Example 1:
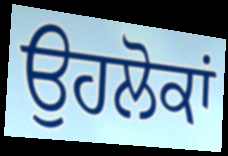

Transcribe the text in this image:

ਉਹਲੋਕਾਂ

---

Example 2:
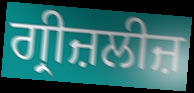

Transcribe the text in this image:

ਗ੍ਰੀਜ਼ਲੀਜ਼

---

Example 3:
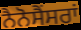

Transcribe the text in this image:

ਨੈਨੋਸੈਂਸਰਾਂ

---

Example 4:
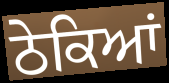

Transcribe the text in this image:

ਠੇਕਿਆਂ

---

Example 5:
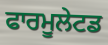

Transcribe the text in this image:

ਫਾਰਮੂਲੇਟਡ